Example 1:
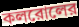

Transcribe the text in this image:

কলরোলের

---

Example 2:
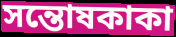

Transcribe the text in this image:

সন্তোষকাকা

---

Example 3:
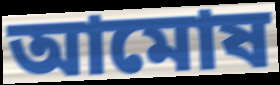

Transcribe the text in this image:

আমোষ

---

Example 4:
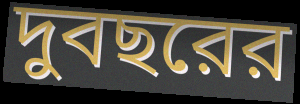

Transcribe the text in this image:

দুবছরের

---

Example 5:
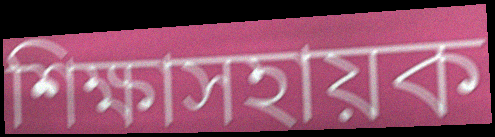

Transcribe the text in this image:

শিক্ষাসহায়ক